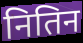
नितिन